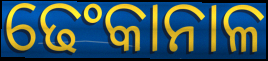
ଢେଂକାନାଳ